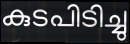
കുടപിടിച്ചു